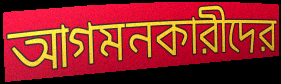
আগমনকারীদের